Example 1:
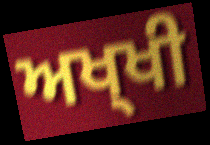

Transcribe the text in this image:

ਅਖ੍ਖੀ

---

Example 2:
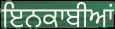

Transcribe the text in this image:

ਇਨਕਾਬੀਆਂ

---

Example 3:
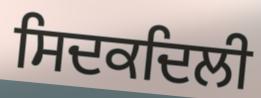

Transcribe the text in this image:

ਸਿਦਕਦਿਲੀ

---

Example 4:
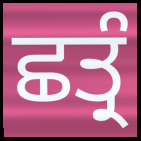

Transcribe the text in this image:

ਛਤ੍ਰੰ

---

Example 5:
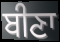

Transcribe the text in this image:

ਬੀਣਾ